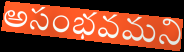
అసంభవమని